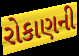
રોકાણની